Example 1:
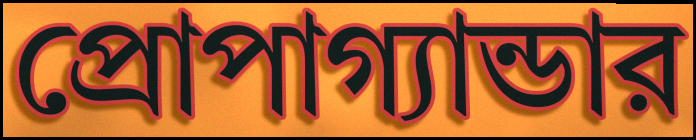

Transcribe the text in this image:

প্রোপাগ্যান্ডার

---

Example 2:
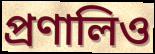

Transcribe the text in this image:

প্রণালিও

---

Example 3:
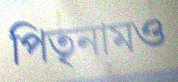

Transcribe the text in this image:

পিতৃনামও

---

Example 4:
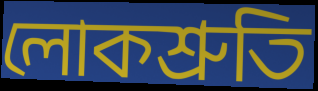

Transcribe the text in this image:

লোকশ্রুতি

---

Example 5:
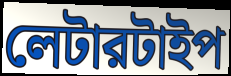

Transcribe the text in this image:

লেটারটাইপ